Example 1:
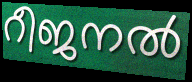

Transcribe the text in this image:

റീജനൽ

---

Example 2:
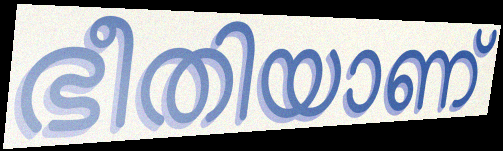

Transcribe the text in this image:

ഭീതിയാണ്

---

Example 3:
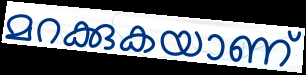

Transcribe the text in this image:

മറക്കുകയാണ്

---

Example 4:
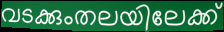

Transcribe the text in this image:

വടക്കുംതലയിലേക്ക്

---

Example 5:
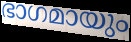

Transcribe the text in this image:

ഭാഗമായും